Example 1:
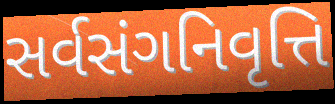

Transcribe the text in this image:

સર્વસંગનિવૃત્તિ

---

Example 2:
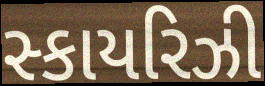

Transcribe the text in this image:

સ્કાયરિઝી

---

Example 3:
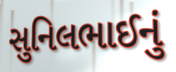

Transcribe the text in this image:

સુનિલભાઈનું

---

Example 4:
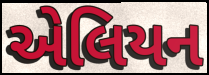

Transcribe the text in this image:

એલિયન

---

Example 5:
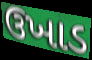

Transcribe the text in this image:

ઉખાડ